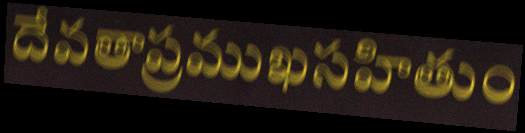
దేవతాప్రముఖసహితుం